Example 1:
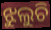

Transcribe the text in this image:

ଝୁଲୁଚି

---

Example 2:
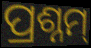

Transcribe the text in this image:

ପ୍ରଶ୍ନମ୍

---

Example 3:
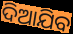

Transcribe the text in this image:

ଦିଆଯିବ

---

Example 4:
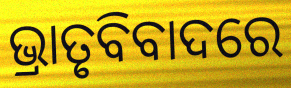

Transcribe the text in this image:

ଭ୍ରାତୃବିବାଦରେ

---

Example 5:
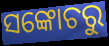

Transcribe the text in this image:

ସଙ୍କୋଚରୁ